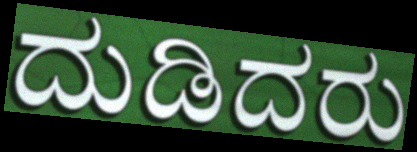
ದುಡಿದರು